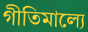
গীতিমাল্যে